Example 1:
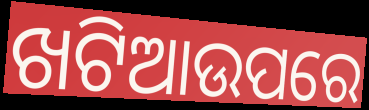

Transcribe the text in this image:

ଖଟିଆଉପରେ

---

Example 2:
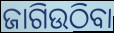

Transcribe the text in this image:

ଜାଗିଉଠିବା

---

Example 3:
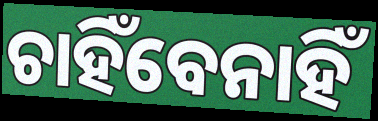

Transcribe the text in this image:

ଚାହିଁବେନାହିଁ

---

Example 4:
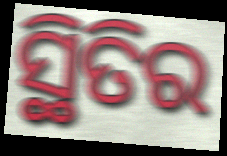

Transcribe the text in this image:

ସ୍ଥିତିର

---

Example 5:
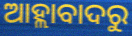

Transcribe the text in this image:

ଆହ୍ଲାବାଦରୁ